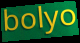
bolyo